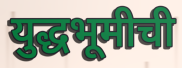
युद्धभूमीची